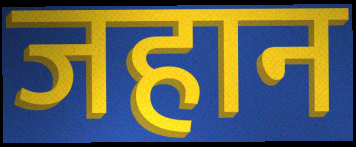
जहान